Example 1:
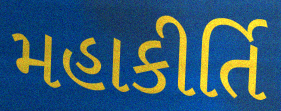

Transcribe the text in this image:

મહાકીર્તિ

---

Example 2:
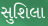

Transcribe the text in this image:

સુશિલા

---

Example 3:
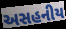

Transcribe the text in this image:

અસહનીય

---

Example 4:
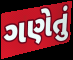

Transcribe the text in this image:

ગણેતું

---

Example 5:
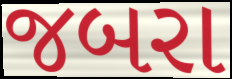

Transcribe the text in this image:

જબરા